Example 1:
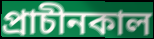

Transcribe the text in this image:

প্রাচীনকাল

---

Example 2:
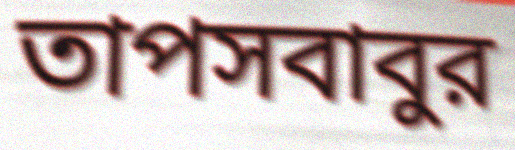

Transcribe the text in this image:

তাপসবাবুর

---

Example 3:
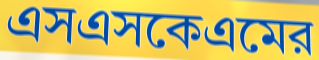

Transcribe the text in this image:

এসএসকেএমের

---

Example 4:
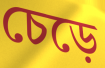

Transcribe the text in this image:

চেড়ে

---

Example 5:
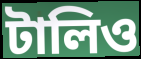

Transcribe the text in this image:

টালিও